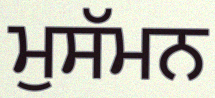
ਮੁਸੱਮਨ